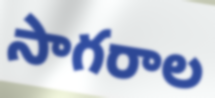
సాగరాల